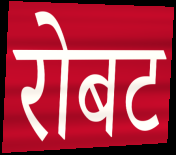
रोबट